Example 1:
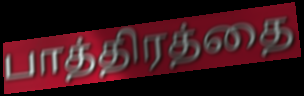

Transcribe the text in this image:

பாத்திரத்தை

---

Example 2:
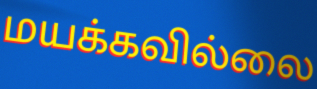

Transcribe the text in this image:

மயக்கவில்லை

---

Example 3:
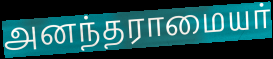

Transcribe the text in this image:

அனந்தராமையர்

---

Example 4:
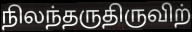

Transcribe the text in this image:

நிலந்தருதிருவிற்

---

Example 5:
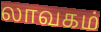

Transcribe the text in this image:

லாவகம்